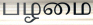
பழமை